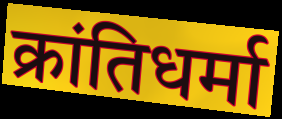
क्रांतिधर्मा